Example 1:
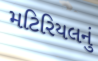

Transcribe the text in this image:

મટિરિયલનું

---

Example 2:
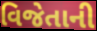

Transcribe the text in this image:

વિજેતાની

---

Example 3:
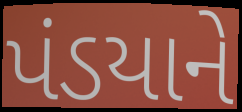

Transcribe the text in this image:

પંડયાને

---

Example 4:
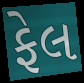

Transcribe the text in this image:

ફેલ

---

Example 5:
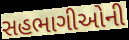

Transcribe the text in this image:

સહભાગીઓની